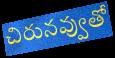
చిరునవ్వుతో